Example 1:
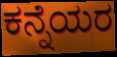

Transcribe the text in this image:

ಕನ್ನೆಯರ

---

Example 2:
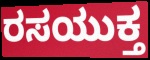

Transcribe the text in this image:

ರಸಯುಕ್ತ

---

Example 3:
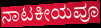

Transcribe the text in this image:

ನಾಟಕೀಯವೂ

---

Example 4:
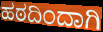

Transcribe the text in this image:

ಹಠದಿಂದಾಗಿ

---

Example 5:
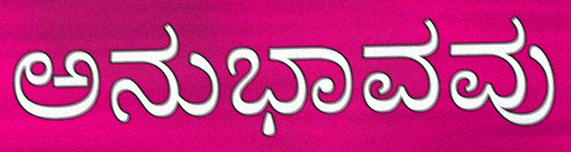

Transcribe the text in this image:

ಅನುಭಾವವು